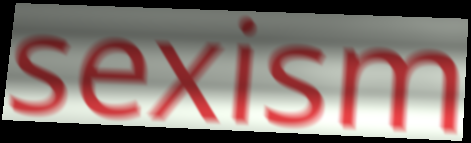
sexism